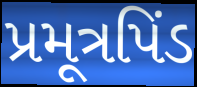
પ્રમૂત્રપિંડ